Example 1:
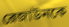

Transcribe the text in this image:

রেজাউনকে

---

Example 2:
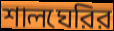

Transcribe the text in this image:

শালঘেরির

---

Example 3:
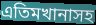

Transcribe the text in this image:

এতিমখানাসহ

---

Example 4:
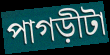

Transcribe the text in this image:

পাগড়ীটা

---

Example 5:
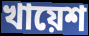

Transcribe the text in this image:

খায়েশ